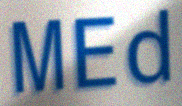
MEd